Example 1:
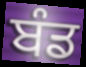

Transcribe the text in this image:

ਬੰਡ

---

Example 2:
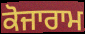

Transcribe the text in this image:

ਕੋਜਾਰਾਮ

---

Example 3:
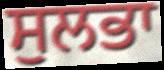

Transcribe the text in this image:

ਸੁਲਭਾ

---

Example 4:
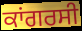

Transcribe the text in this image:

ਕਾਂਗਰਸੀ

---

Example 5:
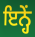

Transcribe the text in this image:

ਇਨ੍ਹੇਂ